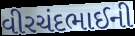
વીરચંદભાઈની